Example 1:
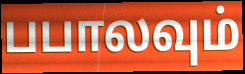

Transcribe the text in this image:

பபாலவும்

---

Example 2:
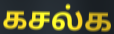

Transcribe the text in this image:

கசல்க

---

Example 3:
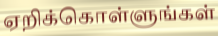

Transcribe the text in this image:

ஏறிக்கொள்ளுங்கள்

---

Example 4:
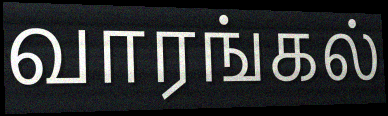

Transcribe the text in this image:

வாரங்கல்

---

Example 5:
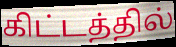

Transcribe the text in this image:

கிட்டத்தில்